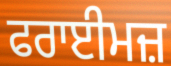
ਫਰਾਈਮਜ਼